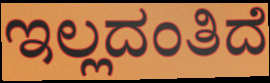
ಇಲ್ಲದಂತಿದೆ